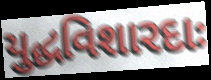
યુદ્ધવિશારદાઃ